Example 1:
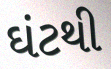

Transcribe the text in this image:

ઘંટથી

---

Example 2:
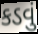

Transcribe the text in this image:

કડવું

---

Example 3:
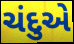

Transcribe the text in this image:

ચંદુએ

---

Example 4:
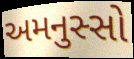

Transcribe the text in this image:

અમનુસ્સો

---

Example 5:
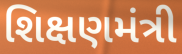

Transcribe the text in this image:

શિક્ષણમંત્રી